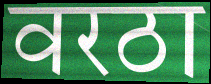
वरठा